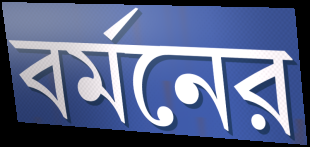
বর্মনের